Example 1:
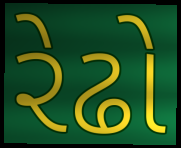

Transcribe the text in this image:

રેઢો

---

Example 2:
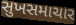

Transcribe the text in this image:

સુખસમાચાર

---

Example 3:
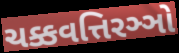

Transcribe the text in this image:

ચક્કવત્તિરઞ્ઞો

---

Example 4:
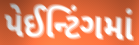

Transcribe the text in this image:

પેઈન્ટિંગમાં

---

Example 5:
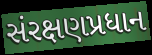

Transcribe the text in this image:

સંરક્ષણપ્રધાન